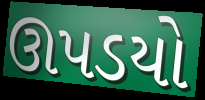
ઊપડયો